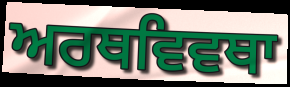
ਅਰਥਵਿਵਥਾ